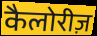
कैलोरीज़